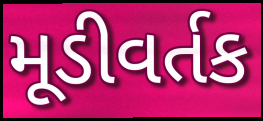
મૂડીવર્તક